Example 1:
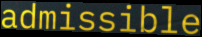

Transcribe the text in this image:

admissible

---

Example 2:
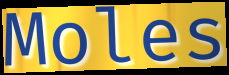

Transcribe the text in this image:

Moles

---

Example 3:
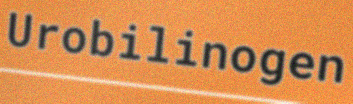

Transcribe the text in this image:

Urobilinogen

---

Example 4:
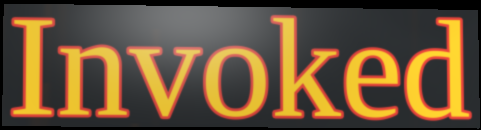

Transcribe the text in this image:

Invoked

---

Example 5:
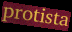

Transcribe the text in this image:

protista